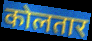
कोलतार